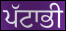
ਪੱਟਾਭੀ